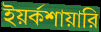
ইয়র্কশায়ারি